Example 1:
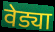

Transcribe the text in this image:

वेड्या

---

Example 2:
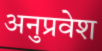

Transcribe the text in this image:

अनुप्रवेश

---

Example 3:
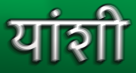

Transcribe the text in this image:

यांशी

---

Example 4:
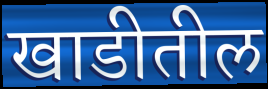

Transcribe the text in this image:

खाडीतील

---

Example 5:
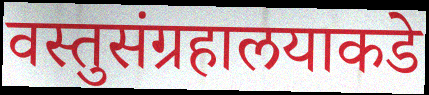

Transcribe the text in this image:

वस्तुसंग्रहालयाकडे